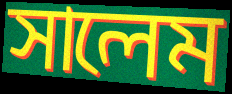
সালেম